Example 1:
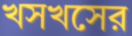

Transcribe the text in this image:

খসখসের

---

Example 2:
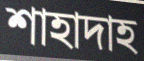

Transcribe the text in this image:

শাহাদাহ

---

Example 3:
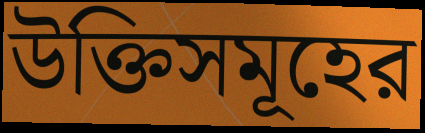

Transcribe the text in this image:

উক্তিসমূহের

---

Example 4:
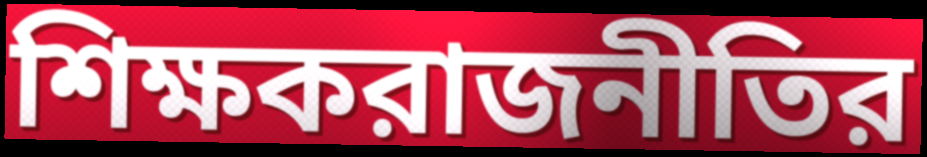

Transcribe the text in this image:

শিক্ষকরাজনীতির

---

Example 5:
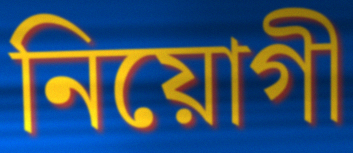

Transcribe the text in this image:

নিয়োগী